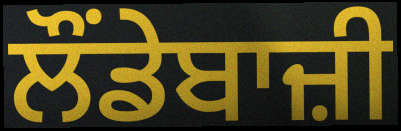
ਲੌਂਡੇਬਾਜ਼ੀ